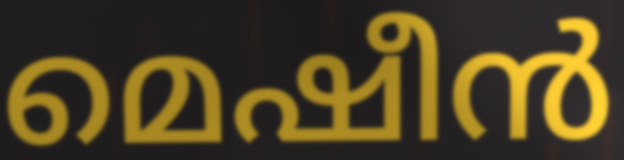
മെഷീൻ